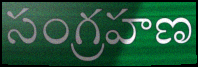
సంగ్రహణ